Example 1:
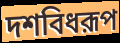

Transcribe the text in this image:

দশবিধরূপ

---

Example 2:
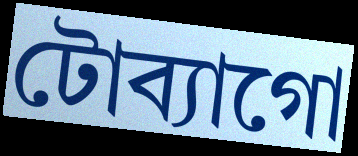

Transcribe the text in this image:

টোব্যাগো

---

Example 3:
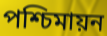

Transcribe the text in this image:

পশ্চিমায়ন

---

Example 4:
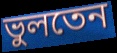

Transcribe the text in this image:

ভুলতেন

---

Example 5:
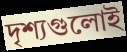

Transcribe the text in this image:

দৃশ্যগুলোই